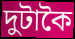
দুটাকৈ